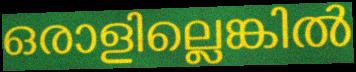
ഒരാളില്ലെങ്കിൽ